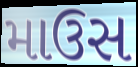
માઉસ